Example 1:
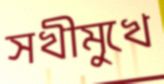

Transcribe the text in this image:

সখীমুখে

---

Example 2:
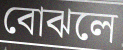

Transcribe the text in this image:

বোঝলে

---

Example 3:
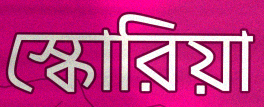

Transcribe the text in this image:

স্কোরিয়া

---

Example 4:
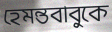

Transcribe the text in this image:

হেমন্তবাবুকে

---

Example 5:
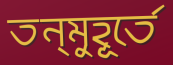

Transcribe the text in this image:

তন্‌মুহূর্তে